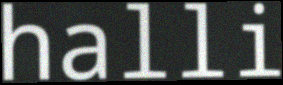
halli